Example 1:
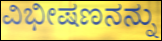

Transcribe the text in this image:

ವಿಭೀಷಣನನ್ನು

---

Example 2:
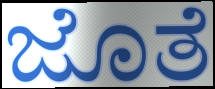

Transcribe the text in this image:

ಜೊತೆ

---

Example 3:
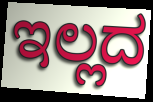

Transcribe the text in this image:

ಇಲ್ಲದ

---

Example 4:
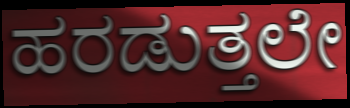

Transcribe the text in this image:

ಹರಡುತ್ತಲೇ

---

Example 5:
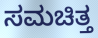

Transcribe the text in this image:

ಸಮಚಿತ್ತ